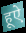
हूऐ